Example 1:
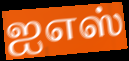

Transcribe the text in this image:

ஐஎஸ்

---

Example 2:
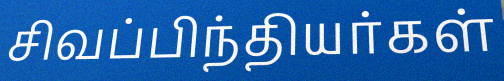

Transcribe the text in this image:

சிவப்பிந்தியர்கள்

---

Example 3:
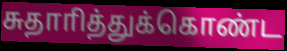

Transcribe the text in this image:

சுதாரித்துக்கொண்ட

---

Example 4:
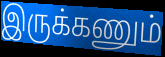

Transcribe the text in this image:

இருக்கணும்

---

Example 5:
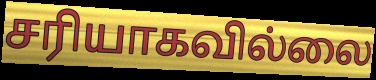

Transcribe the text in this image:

சரியாகவில்லை